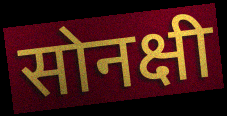
सोनक्षी